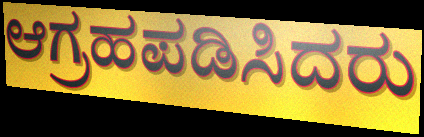
ಆಗ್ರಹಪಡಿಸಿದರು